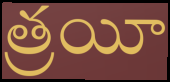
త్రయీ